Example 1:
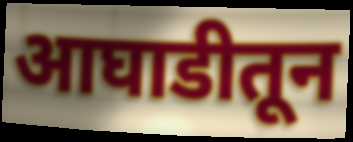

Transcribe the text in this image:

आघाडीतून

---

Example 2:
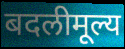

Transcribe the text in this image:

बदलीमूल्य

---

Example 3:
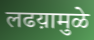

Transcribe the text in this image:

लढय़ामुळे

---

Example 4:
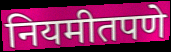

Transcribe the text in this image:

नियमीतपणे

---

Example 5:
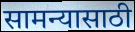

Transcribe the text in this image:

सामन्यासाठी